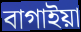
বাগাইয়া